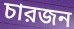
চারজন